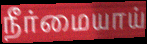
நீர்மையாய்